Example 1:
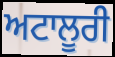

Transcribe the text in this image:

ਅਟਾਲੂਰੀ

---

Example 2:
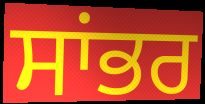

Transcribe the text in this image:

ਸਾਂਭਰ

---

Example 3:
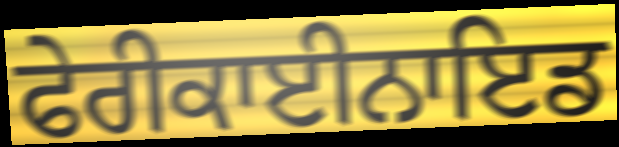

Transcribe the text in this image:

ਫੇਰੀਕਾਈਨਾਇਡ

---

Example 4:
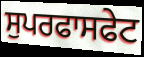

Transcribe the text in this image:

ਸੁਪਰਫਾਸਫੇਟ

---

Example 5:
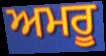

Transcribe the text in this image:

ਅਮਰੂ